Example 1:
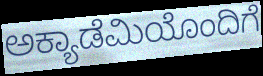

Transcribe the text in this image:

ಅಕ್ಯಾಡೆಮಿಯೊಂದಿಗೆ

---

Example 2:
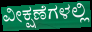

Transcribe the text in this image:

ವೀಕ್ಷಣೆಗಳಲ್ಲಿ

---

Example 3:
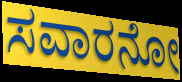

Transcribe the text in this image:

ಸವಾರನೋ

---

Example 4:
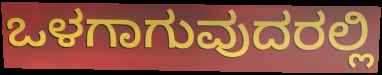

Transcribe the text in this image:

ಒಳಗಾಗುವುದರಲ್ಲಿ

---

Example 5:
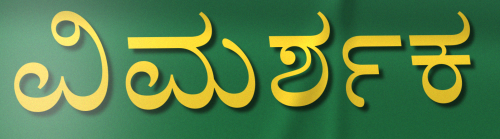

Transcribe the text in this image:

ವಿಮರ್ಶಕ